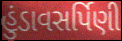
હુંડાવસર્પિણી